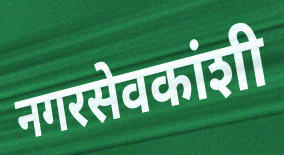
नगरसेवकांशी